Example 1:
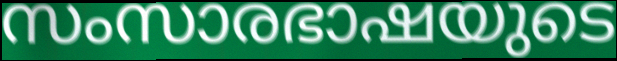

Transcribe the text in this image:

സംസാരഭാഷയുടെ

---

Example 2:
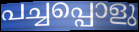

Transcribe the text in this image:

പച്ചപ്പൊളു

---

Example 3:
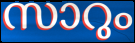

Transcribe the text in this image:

സാറും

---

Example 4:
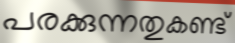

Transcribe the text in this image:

പരക്കുന്നതുകണ്ട്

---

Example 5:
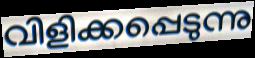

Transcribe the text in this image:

വിളിക്കപ്പെടുന്നു